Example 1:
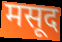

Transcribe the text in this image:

मसूद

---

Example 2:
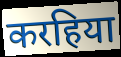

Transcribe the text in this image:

करहिया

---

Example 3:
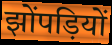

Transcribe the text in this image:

झोंपड़ियों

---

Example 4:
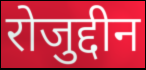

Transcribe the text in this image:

रोजुद्दीन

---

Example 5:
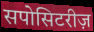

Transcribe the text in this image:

सपोसिटरीज़